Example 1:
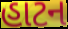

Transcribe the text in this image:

હાટન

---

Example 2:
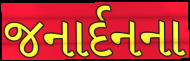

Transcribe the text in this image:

જનાર્દનના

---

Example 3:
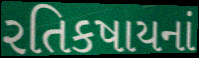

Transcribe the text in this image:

રતિકષાયનાં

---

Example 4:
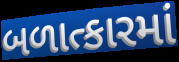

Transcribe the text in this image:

બળાત્કારમાં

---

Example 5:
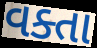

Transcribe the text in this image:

વક્તા